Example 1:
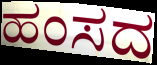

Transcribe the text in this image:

ಹಂಸದ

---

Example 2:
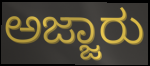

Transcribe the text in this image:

ಅಜ್ಜಾರು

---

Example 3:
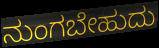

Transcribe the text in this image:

ನುಂಗಬೇಹುದು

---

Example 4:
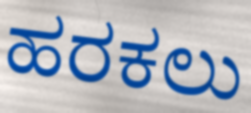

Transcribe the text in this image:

ಹರಕಲು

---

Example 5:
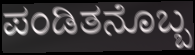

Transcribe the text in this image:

ಪಂಡಿತನೊಬ್ಬ